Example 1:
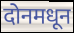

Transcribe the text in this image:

दोनमधून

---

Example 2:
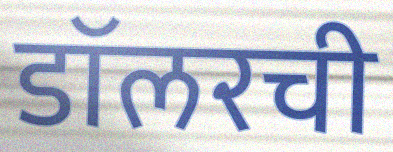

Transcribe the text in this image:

डॉलरची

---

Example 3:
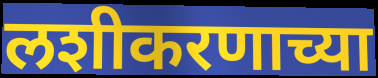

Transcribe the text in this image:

लशीकरणाच्या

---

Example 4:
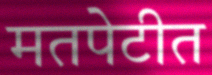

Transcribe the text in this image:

मतपेटीत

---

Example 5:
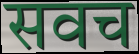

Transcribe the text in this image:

सवच